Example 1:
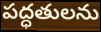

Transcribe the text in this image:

పద్ధతులను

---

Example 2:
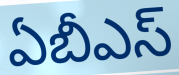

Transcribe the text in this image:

ఏబీఎస్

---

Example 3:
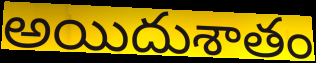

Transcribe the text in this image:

అయిదుశాతం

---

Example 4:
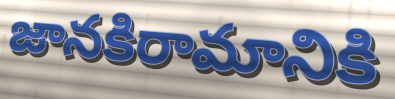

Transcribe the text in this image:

జానకిరామానికి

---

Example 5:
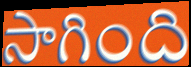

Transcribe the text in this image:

సాగింది